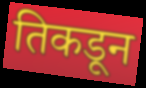
तिकडून